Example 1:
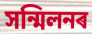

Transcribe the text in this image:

সন্মিলনৰ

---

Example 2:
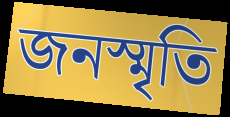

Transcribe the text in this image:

জনস্মৃতি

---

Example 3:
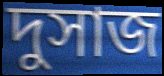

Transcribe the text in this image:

দুসাজ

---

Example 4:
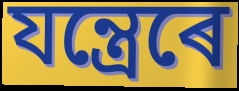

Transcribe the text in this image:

যন্ত্ৰেৰে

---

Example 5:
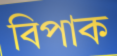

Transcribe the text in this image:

বিপাক